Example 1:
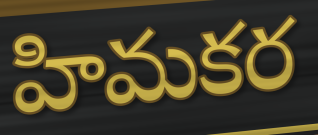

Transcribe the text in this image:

హిమకర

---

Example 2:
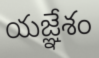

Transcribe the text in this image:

యజ్ఞేశం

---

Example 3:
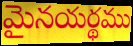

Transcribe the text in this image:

మైనయర్థము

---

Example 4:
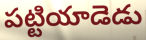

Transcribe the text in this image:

పట్టియాడెడు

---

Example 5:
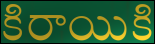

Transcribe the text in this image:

కిరాయికి